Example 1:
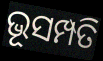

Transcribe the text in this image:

ଭୂସମ୍ପତି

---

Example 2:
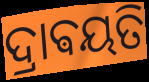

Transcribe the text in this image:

ଦ୍ରାଵୟତି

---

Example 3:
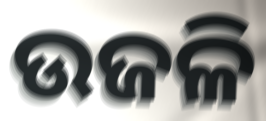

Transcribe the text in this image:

ଉଜଳି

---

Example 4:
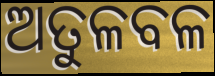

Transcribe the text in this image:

ଅତୁଳବଳ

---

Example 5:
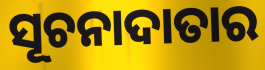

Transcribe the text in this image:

ସୂଚନାଦାତାର